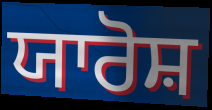
ਯਾਰੋਸ਼